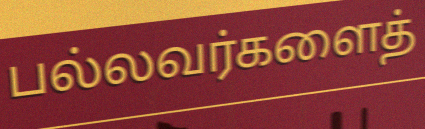
பல்லவர்களைத்